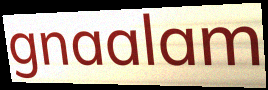
gnaalam